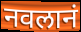
नवलानं